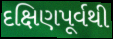
દક્ષિણપૂર્વથી